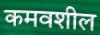
कमवशील